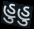
હુહુ